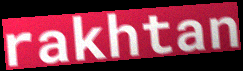
rakhtan